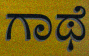
ಗಾಥೆ